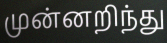
முன்னறிந்து